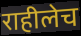
राहीलेच